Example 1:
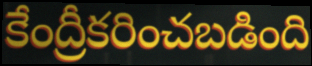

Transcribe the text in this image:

కేంద్రీకరించబడింది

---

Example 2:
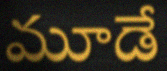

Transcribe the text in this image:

మూడే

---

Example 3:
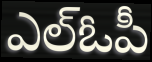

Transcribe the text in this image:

ఎల్ఓపీ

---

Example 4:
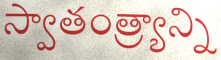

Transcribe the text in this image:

స్వాతంత్ర్యాన్ని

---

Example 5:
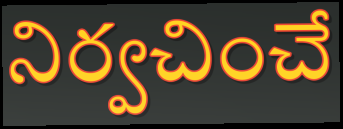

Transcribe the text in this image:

నిర్వచించే